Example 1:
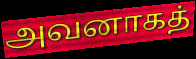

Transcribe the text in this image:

அவனாகத்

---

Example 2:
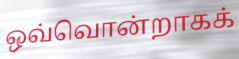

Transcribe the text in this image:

ஒவ்வொன்றாகக்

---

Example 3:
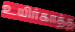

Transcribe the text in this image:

உயிர்காத்த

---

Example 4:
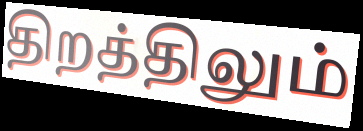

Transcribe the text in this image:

திறத்திலும்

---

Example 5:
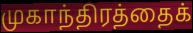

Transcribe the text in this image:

முகாந்திரத்தைக்